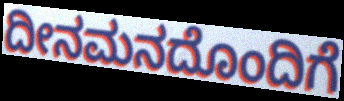
ದೀನಮನದೊಂದಿಗೆ